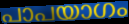
പാപയാഗം